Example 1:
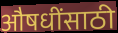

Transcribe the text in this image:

औषधींसाठी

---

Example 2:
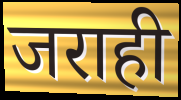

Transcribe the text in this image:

जराही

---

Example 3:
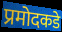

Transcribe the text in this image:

प्रमोदकडे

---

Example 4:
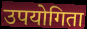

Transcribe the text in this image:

उपयोगिता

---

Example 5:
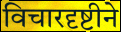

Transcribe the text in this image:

विचारदृष्टीने